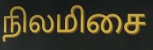
நிலமிசை